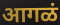
आगळं